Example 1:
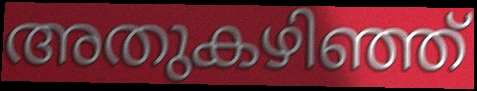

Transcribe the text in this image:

അതുകഴിഞ്ഞ്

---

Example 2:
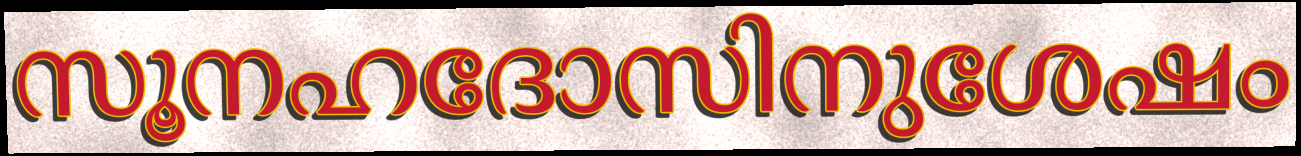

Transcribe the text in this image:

സൂനഹദോസിനുശേഷം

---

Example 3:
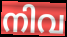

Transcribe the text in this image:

നിവ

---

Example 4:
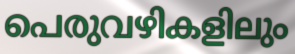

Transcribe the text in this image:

പെരുവഴികളിലും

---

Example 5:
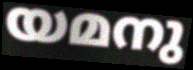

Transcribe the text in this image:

യമനു